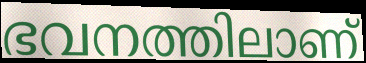
ഭവനത്തിലാണ്